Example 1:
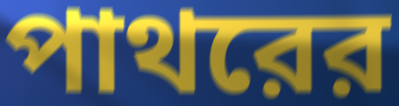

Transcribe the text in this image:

পাথরের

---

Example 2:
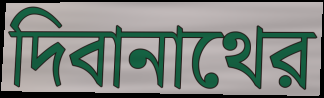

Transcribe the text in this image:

দিবানাথের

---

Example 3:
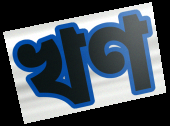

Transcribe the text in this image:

খণ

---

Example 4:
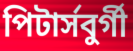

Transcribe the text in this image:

পিটার্সবুর্গী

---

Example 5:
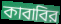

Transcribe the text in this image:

কাবাবির